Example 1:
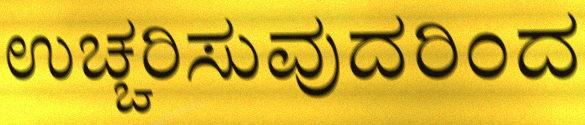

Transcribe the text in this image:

ಉಚ್ಚರಿಸುವುದರಿಂದ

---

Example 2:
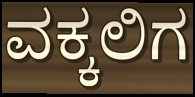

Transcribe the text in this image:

ವಕ್ಕಲಿಗ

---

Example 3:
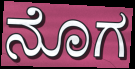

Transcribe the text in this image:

ನೊಗ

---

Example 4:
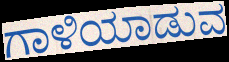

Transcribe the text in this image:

ಗಾಳಿಯಾಡುವ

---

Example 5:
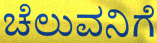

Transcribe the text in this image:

ಚೆಲುವನಿಗೆ